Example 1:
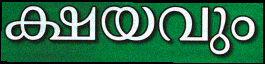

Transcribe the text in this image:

ക്ഷയവും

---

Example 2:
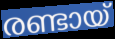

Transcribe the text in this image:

രണ്ടായ്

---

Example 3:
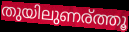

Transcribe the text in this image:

തുയിലുണര്ത്തൂ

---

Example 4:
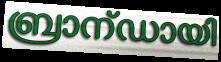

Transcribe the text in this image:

ബ്രാന്ഡായി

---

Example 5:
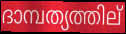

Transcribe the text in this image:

ദാമ്പത്യത്തില്